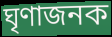
ঘৃণাজনক